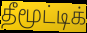
தீமூட்டிக்